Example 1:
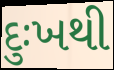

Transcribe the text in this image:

દુઃખથી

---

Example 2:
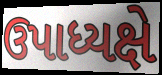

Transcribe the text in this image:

ઉપાધ્યક્ષે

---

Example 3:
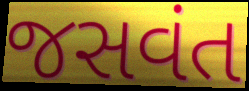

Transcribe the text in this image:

જસવંત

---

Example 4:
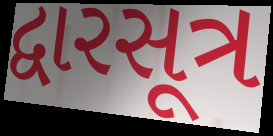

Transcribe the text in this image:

દ્વારસૂત્ર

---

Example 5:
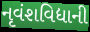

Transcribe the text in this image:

નૃવંશવિદ્યાની